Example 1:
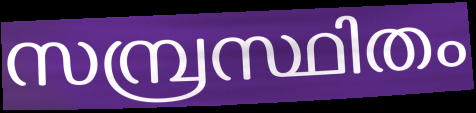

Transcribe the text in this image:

സമ്പ്രസ്ഥിതം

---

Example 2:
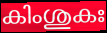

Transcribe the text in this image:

കിംശുകഃ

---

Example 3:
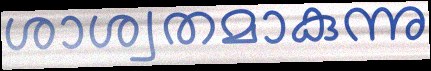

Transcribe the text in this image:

ശാശ്വതമാകുന്നു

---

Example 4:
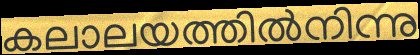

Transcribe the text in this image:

കലാലയത്തിൽനിന്നു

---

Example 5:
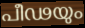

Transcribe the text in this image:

പീഢയും